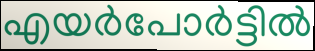
എയർപോർട്ടിൽ